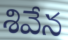
శివేన